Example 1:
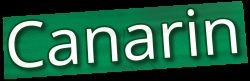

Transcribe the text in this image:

Canarin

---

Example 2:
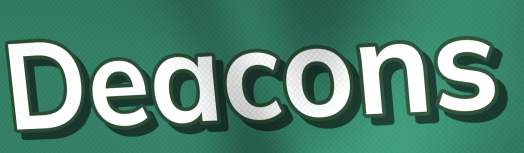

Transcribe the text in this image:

Deacons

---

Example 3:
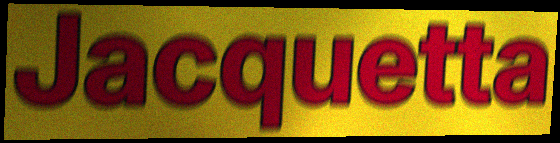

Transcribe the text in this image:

Jacquetta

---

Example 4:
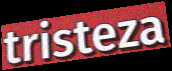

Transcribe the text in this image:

tristeza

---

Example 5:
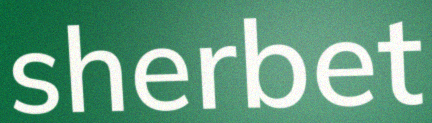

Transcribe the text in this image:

sherbet